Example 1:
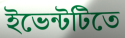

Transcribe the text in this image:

ইভেন্টটিতে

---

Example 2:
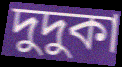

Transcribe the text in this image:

দুদুকা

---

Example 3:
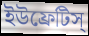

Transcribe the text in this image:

ইউফ্রেটিস্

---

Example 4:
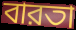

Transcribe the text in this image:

বারতা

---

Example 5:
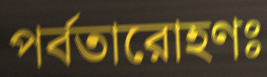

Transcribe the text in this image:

পর্বতারোহণঃ